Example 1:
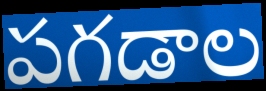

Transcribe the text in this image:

పగడాల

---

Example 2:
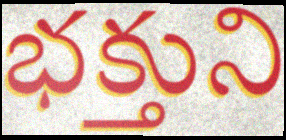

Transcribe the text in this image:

భక్తుని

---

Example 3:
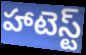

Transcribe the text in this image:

హాటెస్ట్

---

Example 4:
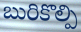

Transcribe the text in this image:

బురికొల్పి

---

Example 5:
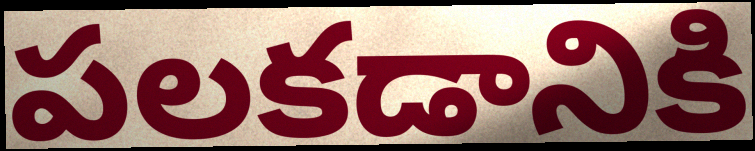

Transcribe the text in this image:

పలకడానికి